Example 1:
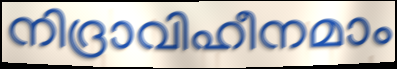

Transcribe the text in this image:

നിദ്രാവിഹീനമാം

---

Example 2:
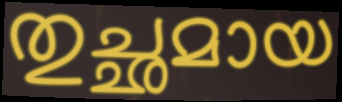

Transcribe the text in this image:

തുച്ഛമായ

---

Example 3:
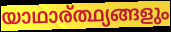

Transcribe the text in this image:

യാഥാര്ത്ഥ്യങ്ങളും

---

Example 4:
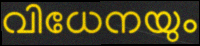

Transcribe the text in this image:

വിധേനയും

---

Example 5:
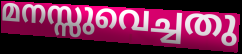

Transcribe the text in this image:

മനസ്സുവെച്ചതു